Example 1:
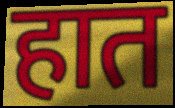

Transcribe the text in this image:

हात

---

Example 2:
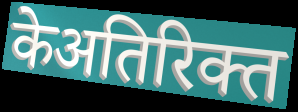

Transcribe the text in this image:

केअतिरिक्त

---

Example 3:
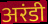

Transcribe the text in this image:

अरंडी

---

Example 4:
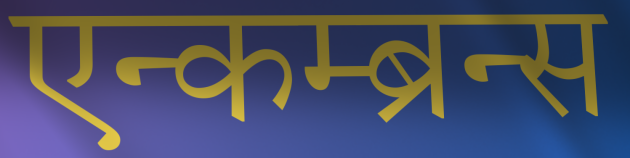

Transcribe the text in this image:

एन्कम्ब्रन्स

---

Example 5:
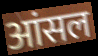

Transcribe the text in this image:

आंसल